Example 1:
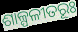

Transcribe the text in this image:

ଶାଳ୍ପଳୀତରୂଃ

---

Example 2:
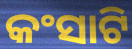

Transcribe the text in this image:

କଂସାଟି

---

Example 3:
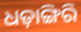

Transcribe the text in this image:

ଧଡ଼ାଙ୍ଗିରି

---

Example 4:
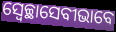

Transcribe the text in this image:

ସ୍ୱେଚ୍ଛାସେବୀଭାବେ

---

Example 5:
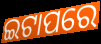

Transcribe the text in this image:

ଇଟାପରେ